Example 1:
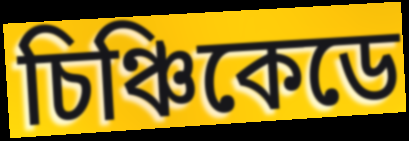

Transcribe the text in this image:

চিঞ্চিকেডে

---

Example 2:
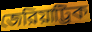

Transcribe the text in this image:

জেরিয়াট্রিক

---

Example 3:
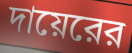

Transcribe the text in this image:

দায়েরের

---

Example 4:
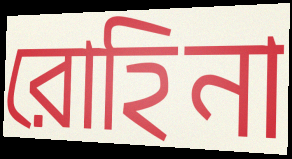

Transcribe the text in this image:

রোহিনা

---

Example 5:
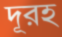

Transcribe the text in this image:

দূরহ